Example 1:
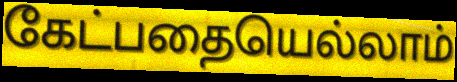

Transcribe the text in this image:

கேட்பதையெல்லாம்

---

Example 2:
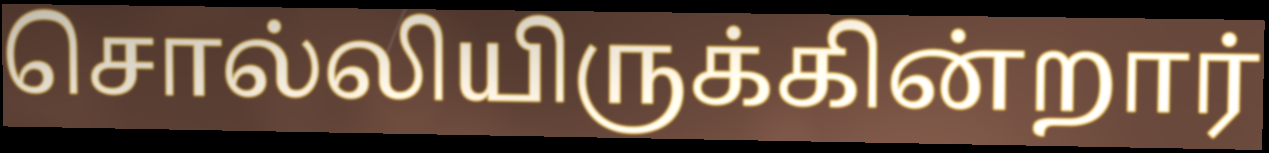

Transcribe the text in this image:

சொல்லியிருக்கின்றார்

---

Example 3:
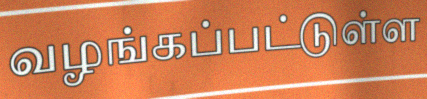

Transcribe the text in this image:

வழங்கப்பட்டுள்ள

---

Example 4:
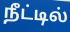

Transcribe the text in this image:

நீட்டில்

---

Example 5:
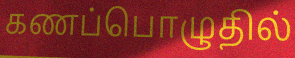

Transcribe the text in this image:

கணப்பொழுதில்